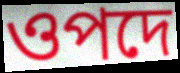
ওপদে